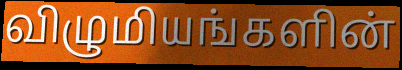
விழுமியங்களின்